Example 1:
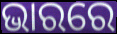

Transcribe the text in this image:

ଭାରରେ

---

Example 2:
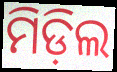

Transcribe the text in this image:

ମିଡ଼ିଲ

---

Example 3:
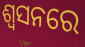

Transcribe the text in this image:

ଶ୍ଵସନରେ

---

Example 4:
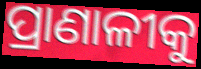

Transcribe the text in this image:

ପ୍ରାଣାଳୀକୁ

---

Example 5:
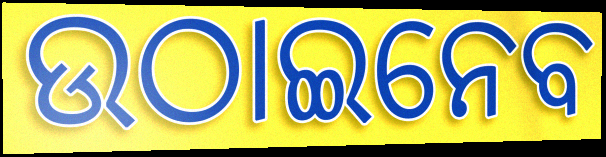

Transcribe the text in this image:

ଉଠାଇନେବ